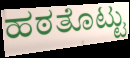
ಹಠತೊಟ್ಟು